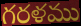
గరళము